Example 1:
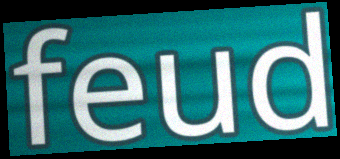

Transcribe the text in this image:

feud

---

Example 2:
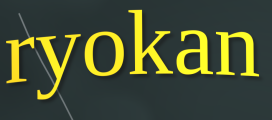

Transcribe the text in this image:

ryokan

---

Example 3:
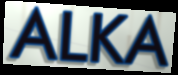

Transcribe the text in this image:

ALKA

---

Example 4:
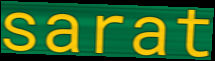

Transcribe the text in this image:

sarat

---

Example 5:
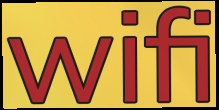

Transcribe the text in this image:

wifi